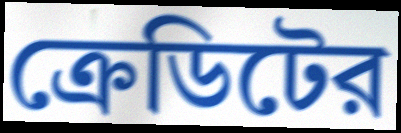
ক্রেডিটের